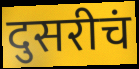
दुसरीचं